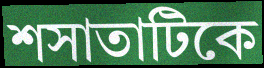
শসাতাটিকে